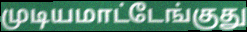
முடியமாட்டேங்குது